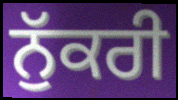
ਨੁੱਕਰੀ